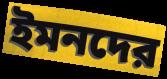
ইমনদের